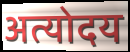
अत्योदय